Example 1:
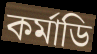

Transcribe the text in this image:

কর্মাডি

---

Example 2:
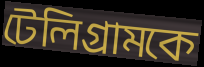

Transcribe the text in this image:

টেলিগ্রামকে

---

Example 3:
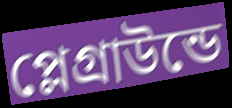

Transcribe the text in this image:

প্লেগ্রাউন্ডে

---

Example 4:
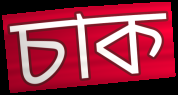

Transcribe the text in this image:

চাক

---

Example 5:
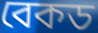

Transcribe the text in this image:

বেকড